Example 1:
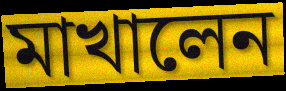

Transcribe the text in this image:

মাখালেন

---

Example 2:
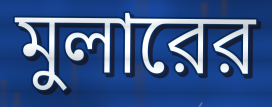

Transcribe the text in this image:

মুলারের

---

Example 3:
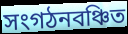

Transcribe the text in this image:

সংগঠনবঞ্চিত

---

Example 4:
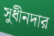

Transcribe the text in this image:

সুধীনদার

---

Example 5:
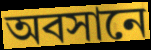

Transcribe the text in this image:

অবসানে